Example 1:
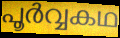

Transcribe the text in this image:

പൂർവ്വകഥ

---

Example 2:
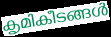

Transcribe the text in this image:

കൃമികീടങ്ങൾ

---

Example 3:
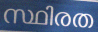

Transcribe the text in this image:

സ്ഥിരത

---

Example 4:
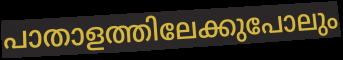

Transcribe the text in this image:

പാതാളത്തിലേക്കുപോലും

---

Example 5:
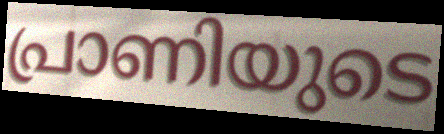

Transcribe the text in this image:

പ്രാണിയുടെ